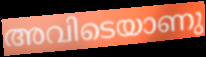
അവിടെയാണു